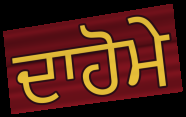
ਦਾਹੋਮੇ